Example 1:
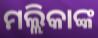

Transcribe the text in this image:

ମଲ୍ଲିକାଙ୍କ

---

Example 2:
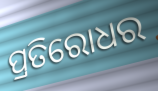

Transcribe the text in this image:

ପ୍ରତିରୋଧର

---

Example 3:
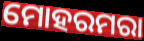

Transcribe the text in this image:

ମୋହରମରା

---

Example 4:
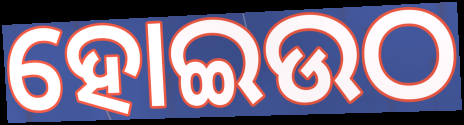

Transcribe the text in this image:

ହୋଇଉଠ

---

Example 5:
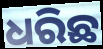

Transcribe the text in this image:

ଧରିଛ